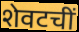
शेवटचीं